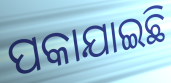
ପକାଯାଇଛି